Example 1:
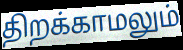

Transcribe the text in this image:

திறக்காமலும்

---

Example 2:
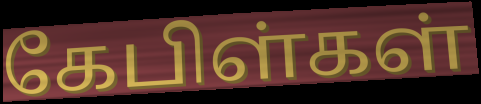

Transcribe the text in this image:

கேபிள்கள்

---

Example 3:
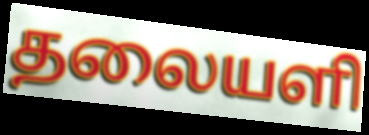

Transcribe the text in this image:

தலையளி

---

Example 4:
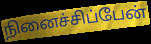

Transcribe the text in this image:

நினைச்சிப்பேன்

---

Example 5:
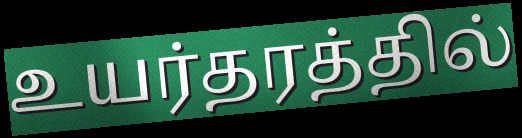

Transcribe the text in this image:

உயர்தரத்தில்